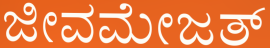
ಜೀವಮೇಜತ್